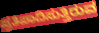
ಪ್ರತಿಪಾದಿಸುತ್ತಿರುವ